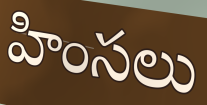
హింసలు